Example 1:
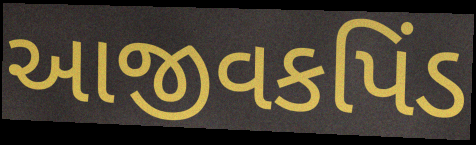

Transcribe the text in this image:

આજીવકપિંડ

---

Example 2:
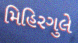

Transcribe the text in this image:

મિહિરગુલે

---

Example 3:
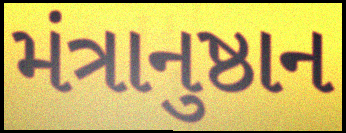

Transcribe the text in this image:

મંત્રાનુષ્ઠાન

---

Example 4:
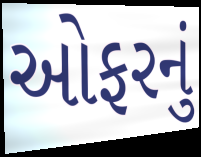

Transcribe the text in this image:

ઓફરનું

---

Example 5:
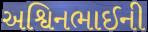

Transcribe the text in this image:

અશ્વિનભાઈની